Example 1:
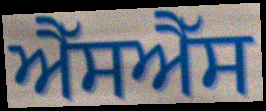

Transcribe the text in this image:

ਐੱਸਐੱਸ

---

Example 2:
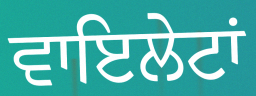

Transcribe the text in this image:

ਵਾਇਲੇਟਾਂ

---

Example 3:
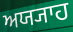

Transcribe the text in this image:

ਅਯ੍ਯਾਹ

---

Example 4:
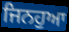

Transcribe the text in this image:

ਜਿਨਹੁਆ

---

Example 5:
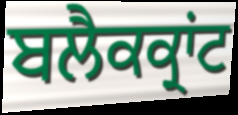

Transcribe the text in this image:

ਬਲੈਕਕ੍ਰਾਂਟ